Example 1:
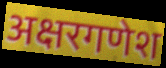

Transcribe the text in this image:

अक्षरगणेश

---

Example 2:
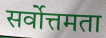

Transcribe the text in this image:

सर्वोत्तमता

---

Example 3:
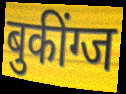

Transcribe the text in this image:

बुकींग्ज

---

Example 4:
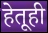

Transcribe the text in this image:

हेतूही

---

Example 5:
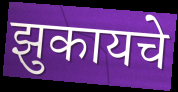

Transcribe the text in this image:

झुकायचे